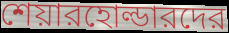
শেয়ারহোল্ডারদের